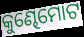
କୁଣ୍ଢେମୋଟ